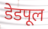
डेडपूल